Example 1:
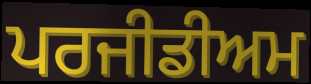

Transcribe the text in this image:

ਪਰਜੀਡੀਅਮ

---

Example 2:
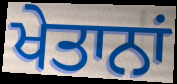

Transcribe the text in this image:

ਖੇਤਾਨਾਂ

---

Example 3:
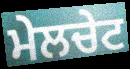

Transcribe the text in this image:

ਮੇਲਚੇਟ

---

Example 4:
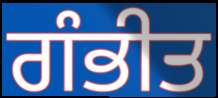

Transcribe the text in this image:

ਗੰਭੀਤ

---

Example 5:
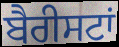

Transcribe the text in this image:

ਬੈਰੀਸਟਾਂ